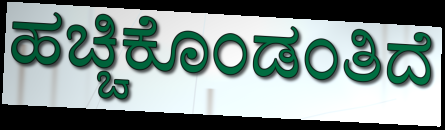
ಹಚ್ಚಿಕೊಂಡಂತಿದೆ